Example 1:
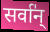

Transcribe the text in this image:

सर्वा॑न्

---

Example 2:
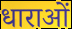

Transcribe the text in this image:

धाराओं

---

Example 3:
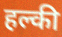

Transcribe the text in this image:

हल्की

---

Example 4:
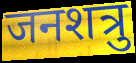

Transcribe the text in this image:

जनशत्रु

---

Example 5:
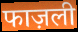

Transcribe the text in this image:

फाज़ली